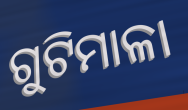
ଗୁଟିମାଳା